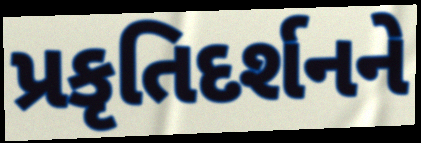
પ્રકૃતિદર્શનને